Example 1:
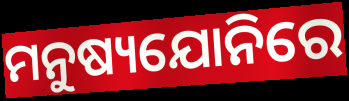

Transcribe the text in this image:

ମନୁଷ୍ୟଯୋନିରେ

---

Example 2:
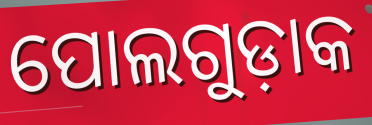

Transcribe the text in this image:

ପୋଲଗୁଡ଼ାକ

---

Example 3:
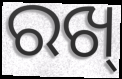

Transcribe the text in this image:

ରଖ୍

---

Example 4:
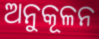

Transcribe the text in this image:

ଅନୁକୂଳନ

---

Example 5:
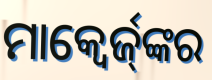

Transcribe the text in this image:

ମାକ୍ୱେର୍ଜ୍‌ଙ୍କର